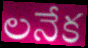
లనేక